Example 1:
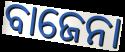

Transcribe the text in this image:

ବାଜେନା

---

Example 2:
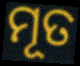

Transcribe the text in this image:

ମୂତ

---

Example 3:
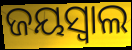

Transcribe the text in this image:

ଜୟସ୍ୱାଲ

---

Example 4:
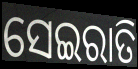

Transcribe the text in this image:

ସେଇରାତି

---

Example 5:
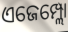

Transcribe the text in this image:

ଏଜେମ୍ପ୍ଲୋ